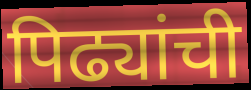
पिढ्यांची